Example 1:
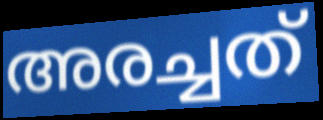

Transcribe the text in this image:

അരച്ചത്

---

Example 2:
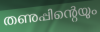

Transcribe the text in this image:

തണുപ്പിന്റെയും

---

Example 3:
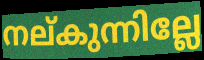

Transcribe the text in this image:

നല്കുന്നില്ലേ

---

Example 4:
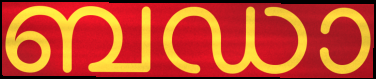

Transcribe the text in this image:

ബഡാ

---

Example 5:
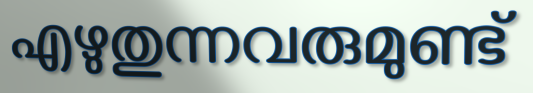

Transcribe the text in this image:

എഴുതുന്നവരുമുണ്ട്